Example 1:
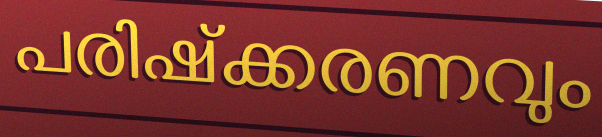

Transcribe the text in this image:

പരിഷ്ക്കരണവും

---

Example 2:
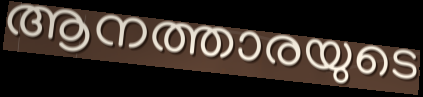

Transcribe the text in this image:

ആനത്താരയുടെ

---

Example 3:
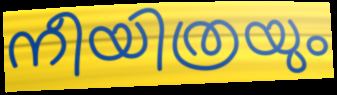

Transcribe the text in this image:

നീയിത്രയും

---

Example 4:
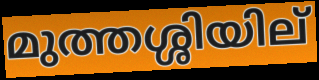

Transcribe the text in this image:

മുത്തശ്ശിയില്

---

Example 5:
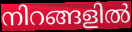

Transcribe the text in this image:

നിറങ്ങളിൽ